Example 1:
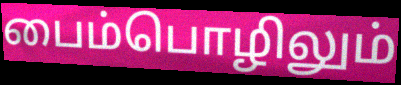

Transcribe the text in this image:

பைம்பொழிலும்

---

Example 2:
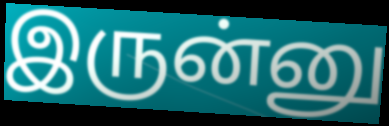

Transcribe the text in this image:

இருன்னு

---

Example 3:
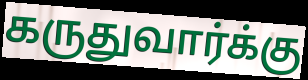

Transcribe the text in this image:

கருதுவார்க்கு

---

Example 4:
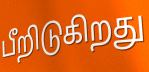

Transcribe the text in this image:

பீறிடுகிறது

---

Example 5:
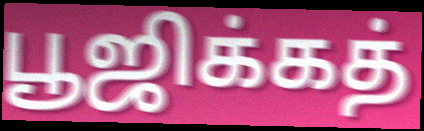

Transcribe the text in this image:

பூஜிக்கத்